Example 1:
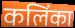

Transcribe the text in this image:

कलिंका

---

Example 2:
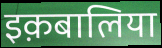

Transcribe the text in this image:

इक़बालिया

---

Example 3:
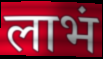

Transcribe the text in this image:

लाभं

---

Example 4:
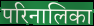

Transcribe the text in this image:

परिनालिका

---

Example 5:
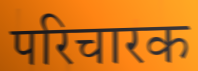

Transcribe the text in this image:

परिचारक